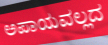
ಅಪಾಯವಲ್ಲದ